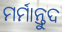
ମର୍ମାନ୍ତୁଦ